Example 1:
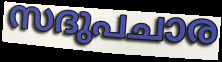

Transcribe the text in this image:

സദുപചാര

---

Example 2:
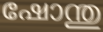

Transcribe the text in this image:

ഷോന്തു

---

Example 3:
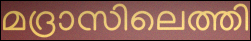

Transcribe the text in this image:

മദ്രാസിലെത്തി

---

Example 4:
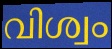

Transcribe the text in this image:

വിശ്വം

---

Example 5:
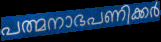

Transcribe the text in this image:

പത്മനാഭപണിക്കർ